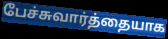
பேச்சுவார்த்தையாக